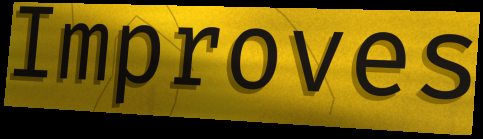
Improves